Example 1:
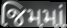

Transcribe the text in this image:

જિમમાં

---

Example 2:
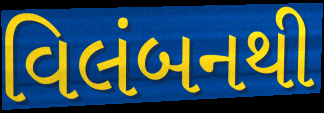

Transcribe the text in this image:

વિલંબનથી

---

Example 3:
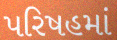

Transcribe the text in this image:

પરિષહમાં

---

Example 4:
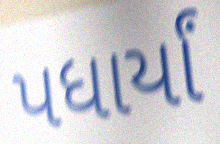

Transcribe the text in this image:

પધાર્યાં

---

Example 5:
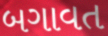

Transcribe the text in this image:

બગાવત